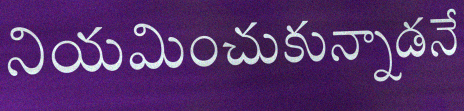
నియమించుకున్నాడనే